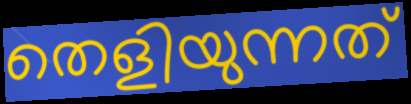
തെളിയുന്നത്